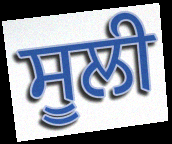
ਸੂਲੀ